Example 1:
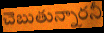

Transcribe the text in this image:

చెబుతున్నారనీ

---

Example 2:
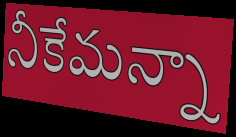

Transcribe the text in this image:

నీకేమన్నా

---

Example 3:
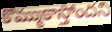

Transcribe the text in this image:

కొమ్ముకాస్తోందని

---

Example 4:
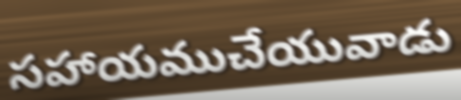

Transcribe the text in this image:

సహాయముచేయువాడు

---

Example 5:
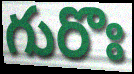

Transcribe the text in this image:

గురొః